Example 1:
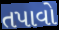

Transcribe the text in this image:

તપાવો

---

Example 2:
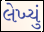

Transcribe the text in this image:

લેખ્યું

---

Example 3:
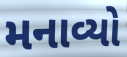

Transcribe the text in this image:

મનાવ્યો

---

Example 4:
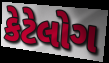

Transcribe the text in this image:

કેટેલોગ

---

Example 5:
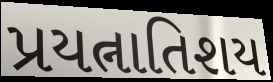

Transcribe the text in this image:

પ્રયત્નાતિશય